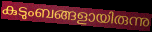
കുടുംബങ്ങളായിരുന്നു